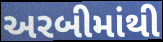
અરબીમાંથી